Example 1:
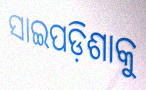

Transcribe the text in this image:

ସାଇପଡ଼ିଶାକୁ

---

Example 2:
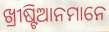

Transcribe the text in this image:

ଖ୍ରୀଷ୍ଟିଆନମାନେ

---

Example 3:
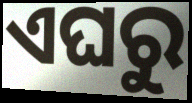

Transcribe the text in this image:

ଏଘରୁ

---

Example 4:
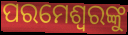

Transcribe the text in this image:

ପରମେଶ୍ୱରଙ୍କୁ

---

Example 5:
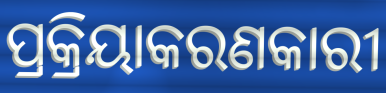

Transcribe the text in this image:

ପ୍ରକ୍ରିୟାକରଣକାରୀ